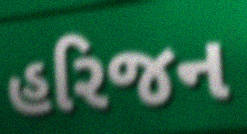
હરિજન